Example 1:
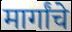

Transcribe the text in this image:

मार्गांचे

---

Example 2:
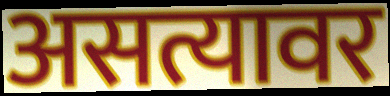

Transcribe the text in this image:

असत्यावर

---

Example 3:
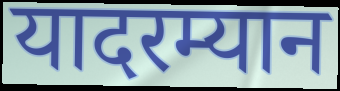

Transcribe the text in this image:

यादरम्यान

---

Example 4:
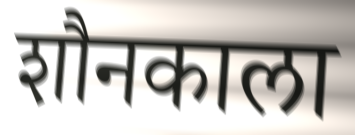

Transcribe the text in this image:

शौनकाला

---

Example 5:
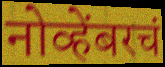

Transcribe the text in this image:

नोव्हेंबरचं